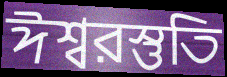
ঈশ্বরস্তুতি